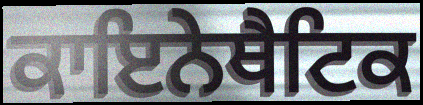
ਕਾਇਨੇਥੈਟਿਕ